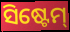
ସିଷ୍ଟେମ୍